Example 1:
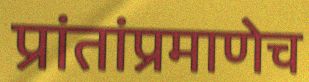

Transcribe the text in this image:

प्रांतांप्रमाणेच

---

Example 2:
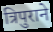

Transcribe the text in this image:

त्रिपुराने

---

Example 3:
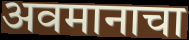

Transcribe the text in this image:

अवमानाचा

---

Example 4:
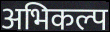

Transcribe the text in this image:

अभिकल्प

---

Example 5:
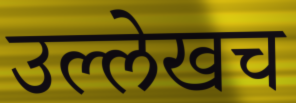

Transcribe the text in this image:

उल्लेखच